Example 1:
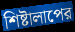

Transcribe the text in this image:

শিষ্টালাপের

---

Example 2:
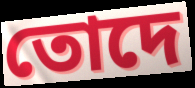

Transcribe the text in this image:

তোদে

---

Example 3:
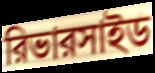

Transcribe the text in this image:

রিভারসাইড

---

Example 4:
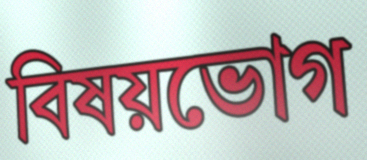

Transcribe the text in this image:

বিষয়ভোগ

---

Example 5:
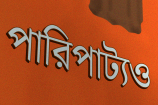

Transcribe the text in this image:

পারিপাট্যও